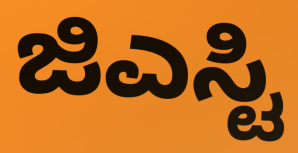
ಜಿಎಸ್ಟಿ